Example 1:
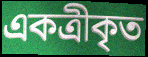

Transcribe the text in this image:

একত্রীকৃত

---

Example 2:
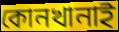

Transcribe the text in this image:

কোনখানাই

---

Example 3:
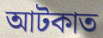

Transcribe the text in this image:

আটকাত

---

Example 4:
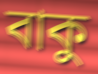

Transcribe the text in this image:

বাকু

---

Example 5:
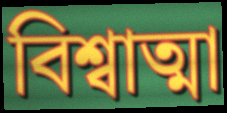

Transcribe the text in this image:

বিশ্বাত্মা